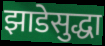
झाडेसुद्धा